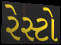
રેસ્ટો